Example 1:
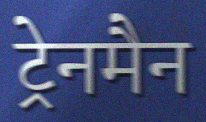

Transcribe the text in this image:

ट्रेनमैन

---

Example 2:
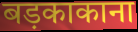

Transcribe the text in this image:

बड़काकाना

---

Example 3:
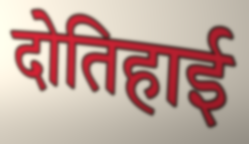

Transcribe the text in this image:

दोतिहाई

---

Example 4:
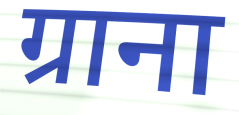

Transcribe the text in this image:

ग्राना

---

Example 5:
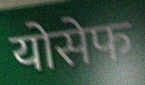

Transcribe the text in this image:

योसेफ